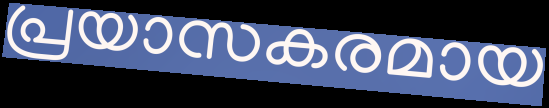
പ്രയാസകരമായ